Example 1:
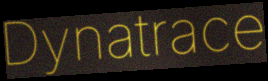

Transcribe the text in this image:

Dynatrace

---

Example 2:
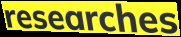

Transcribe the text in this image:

researches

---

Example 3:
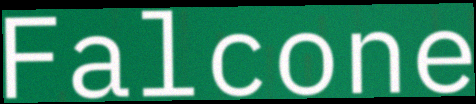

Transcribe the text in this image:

Falcone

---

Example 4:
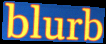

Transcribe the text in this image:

blurb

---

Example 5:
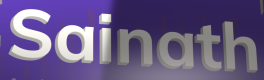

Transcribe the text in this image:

Sainath